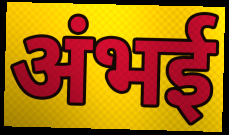
अंभई